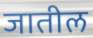
जातील